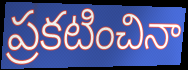
ప్రకటించినా